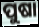
ପୁଷା